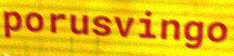
porusvingo